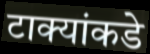
टाक्यांकडे